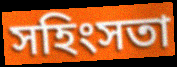
সহিংসতা